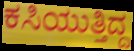
ಕಸಿಯುತ್ತಿದ್ದ